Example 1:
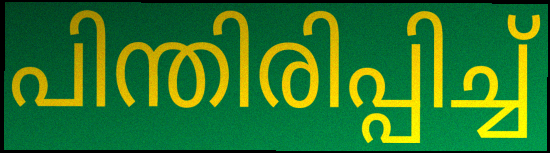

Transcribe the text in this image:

പിന്തിരിപ്പിച്ച്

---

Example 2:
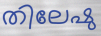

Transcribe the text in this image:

തിലേഷു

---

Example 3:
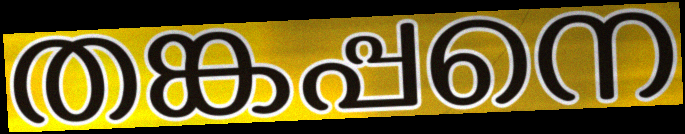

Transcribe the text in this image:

തങ്കപ്പനെ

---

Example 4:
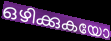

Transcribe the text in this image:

ഒഴിക്കുകയോ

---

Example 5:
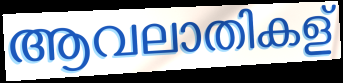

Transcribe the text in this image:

ആവലാതികള്